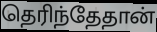
தெரிந்தேதான்